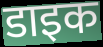
डाइक